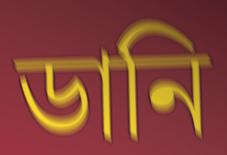
ডানি